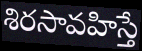
శిరసావహిస్తే